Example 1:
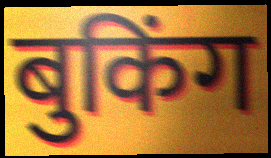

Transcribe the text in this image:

बुकिंग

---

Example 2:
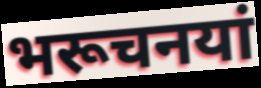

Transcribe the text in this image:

भरूचनयां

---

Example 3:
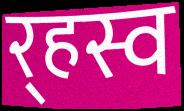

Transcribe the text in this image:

र्‍हस्व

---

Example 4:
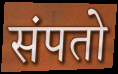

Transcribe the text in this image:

संपतो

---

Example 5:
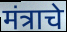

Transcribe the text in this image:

मंत्राचे